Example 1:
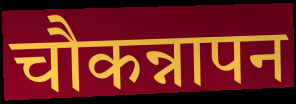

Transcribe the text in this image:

चौकन्नापन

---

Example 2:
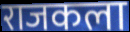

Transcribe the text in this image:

राजकला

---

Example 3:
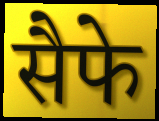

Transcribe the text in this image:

सैफे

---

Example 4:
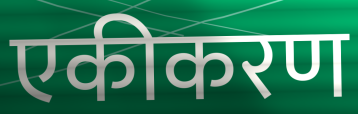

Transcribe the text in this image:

एकीकरण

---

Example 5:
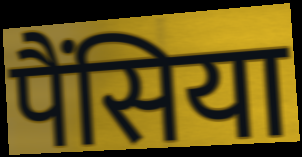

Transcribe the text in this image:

पैंसिया